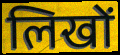
लिखों